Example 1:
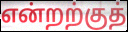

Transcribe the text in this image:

என்றற்குத்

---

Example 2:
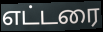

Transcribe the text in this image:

எட்டரை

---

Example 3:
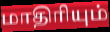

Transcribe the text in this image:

மாதிரியும்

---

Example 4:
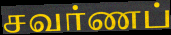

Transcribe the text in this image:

சவர்ணப்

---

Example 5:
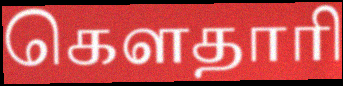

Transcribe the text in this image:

கௌதாரி